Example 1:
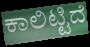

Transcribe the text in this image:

ಕಾಲಿಟ್ಟಿದೆ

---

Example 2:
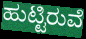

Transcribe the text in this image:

ಹುಟ್ಟಿರುವೆ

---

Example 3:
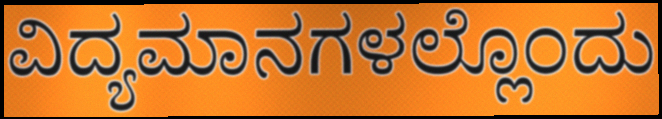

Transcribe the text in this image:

ವಿದ್ಯಮಾನಗಳಲ್ಲೊಂದು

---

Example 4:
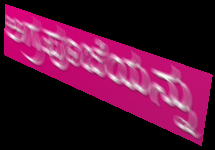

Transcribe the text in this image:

ಅಗ್ರಪೂಜೆಯನ್ನು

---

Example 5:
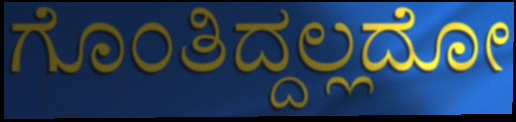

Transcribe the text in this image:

ಗೊಂತಿದ್ದಲ್ಲದೋ